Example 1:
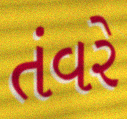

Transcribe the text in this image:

તંવરે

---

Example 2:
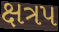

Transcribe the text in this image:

ક્ષત્રપ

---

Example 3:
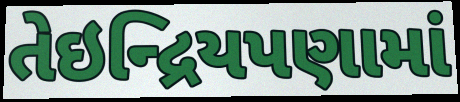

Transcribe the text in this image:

તેઇન્દ્રિયપણામાં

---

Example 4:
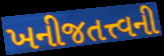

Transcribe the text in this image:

ખનીજતત્ત્વની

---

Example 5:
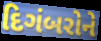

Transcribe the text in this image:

દિગંબરોને